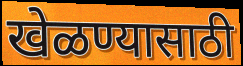
खेळण्यासाठी